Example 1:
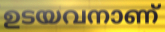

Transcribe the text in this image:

ഉടയവനാണ്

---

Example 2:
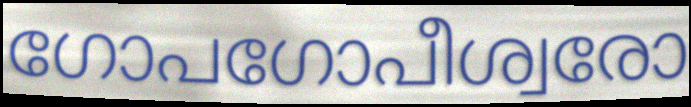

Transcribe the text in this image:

ഗോപഗോപീശ്വരോ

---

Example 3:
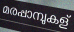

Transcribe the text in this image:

മരപ്പാമ്പുകള്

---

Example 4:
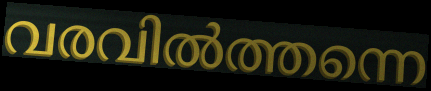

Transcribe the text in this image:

വരവിൽത്തന്നെ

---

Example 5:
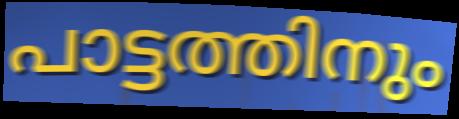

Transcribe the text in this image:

പാട്ടത്തിനും